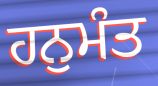
ਹਨੁਮੰਤ